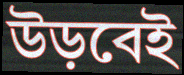
উড়বেই